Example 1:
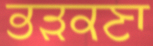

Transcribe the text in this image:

ਭੜਕਣਾ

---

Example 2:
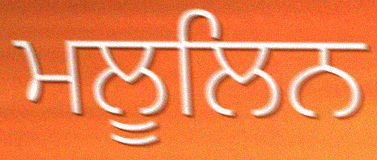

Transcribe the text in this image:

ਮਲੂਲਿਨ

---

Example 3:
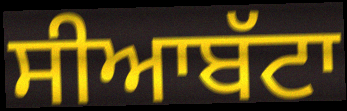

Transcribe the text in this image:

ਸੀਆਬੱਟਾ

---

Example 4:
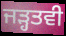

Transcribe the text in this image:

ਜੜ੍ਹਤਵੀ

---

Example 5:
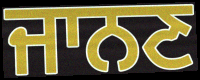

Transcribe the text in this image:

ਜਾਨਣ